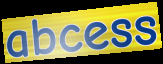
abcess